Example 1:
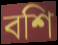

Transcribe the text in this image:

বশি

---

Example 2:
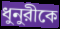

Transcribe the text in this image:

ধুনুরীকে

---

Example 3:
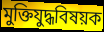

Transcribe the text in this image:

মুক্তিযুদ্ধবিষয়ক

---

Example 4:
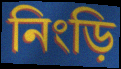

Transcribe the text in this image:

নিংড়ি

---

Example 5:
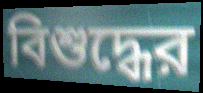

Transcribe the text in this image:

বিশুদ্ধের